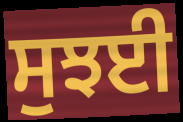
ਸੁਝਈ